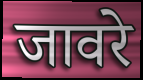
जावरे